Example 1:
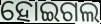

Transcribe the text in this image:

ହୋଇଗଲ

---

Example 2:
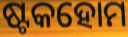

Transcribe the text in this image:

ଷ୍ଟକହୋମ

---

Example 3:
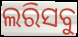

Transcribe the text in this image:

ଲରିସବୁ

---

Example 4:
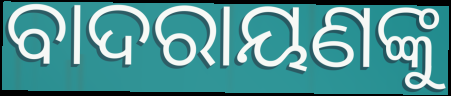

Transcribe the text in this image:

ବାଦରାୟଣଙ୍କୁ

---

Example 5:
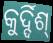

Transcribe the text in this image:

କୁର୍ଦ୍ଦିଶ୍